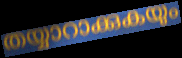
തയ്യാറാക്കുകയും